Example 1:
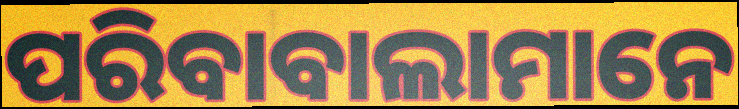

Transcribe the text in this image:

ପରିବାବାଲାମାନେ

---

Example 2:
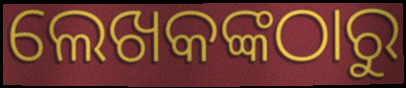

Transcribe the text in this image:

ଲେଖକଙ୍କଠାରୁ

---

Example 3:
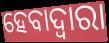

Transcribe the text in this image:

ହେବାଦ୍ୱାରା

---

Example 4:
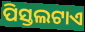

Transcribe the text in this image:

ପିସ୍ତଲଟାଏ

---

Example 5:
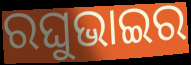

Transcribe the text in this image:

ରଘୁଭାଇର